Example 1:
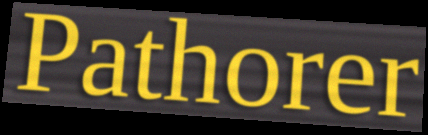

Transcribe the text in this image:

Pathorer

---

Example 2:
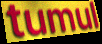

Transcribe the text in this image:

tumul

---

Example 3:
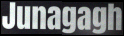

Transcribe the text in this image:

Junagagh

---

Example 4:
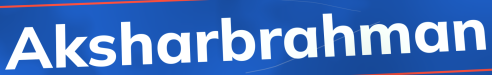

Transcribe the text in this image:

Aksharbrahman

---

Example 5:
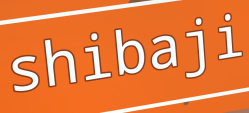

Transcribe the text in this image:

shibaji